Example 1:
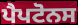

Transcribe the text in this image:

ਪੈਪਟੋਨਸ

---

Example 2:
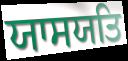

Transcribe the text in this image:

ਯਾਸਯਤਿ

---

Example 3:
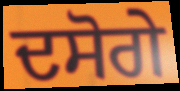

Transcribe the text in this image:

ਦਸੋਗੇ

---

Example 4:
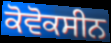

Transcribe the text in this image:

ਕੋਵੋਕਸੀਨ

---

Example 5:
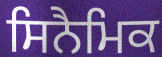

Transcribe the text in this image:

ਸਿਨੈਮਿਕ